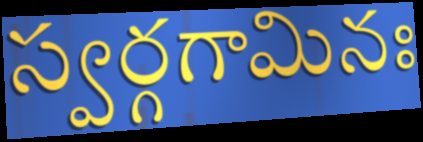
స్వర్గగామినః